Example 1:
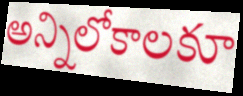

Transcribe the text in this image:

అన్నిలోకాలకూ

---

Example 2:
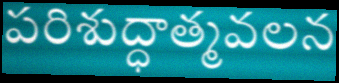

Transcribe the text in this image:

పరిశుద్ధాత్మవలన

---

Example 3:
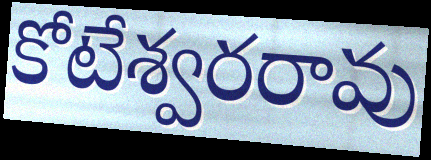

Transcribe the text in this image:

కోటేశ్వరరావు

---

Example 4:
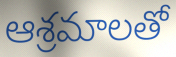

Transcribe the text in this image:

ఆశ్రమాలతో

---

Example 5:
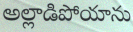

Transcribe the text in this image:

అల్లాడిపోయాను